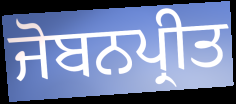
ਜੋਬਨਪ੍ਰੀਤ